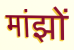
मांझों